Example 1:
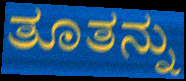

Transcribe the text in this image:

ತೂತನ್ನು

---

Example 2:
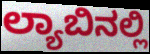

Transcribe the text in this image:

ಲ್ಯಾಬಿನಲ್ಲಿ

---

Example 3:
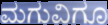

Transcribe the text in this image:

ಮಗುವಿಗೂ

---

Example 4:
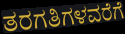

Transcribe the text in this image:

ತರಗತಿಗಳವರೆಗೆ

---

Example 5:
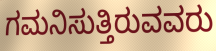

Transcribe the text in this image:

ಗಮನಿಸುತ್ತಿರುವವರು